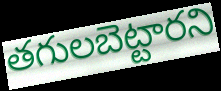
తగులబెట్టారని